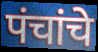
पंचांचे